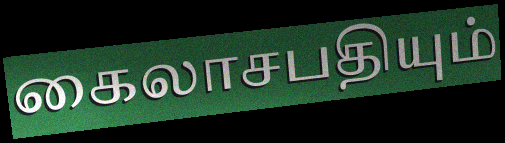
கைலாசபதியும்